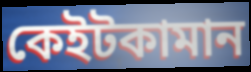
কেইটকামান